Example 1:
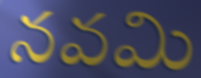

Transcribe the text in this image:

నవమి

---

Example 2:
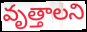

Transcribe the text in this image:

వృత్తాలని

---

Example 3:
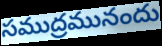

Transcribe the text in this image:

సముద్రమునందు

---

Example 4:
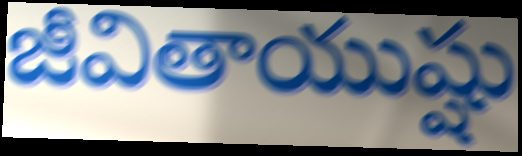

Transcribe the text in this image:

జీవితాయుష్షు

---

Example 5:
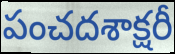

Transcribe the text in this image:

పంచదశాక్షరీ